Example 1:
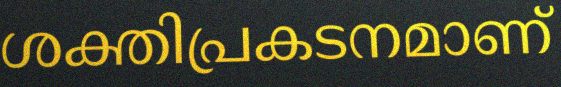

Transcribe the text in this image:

ശക്തിപ്രകടനമാണ്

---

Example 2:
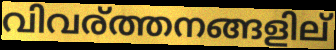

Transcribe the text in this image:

വിവര്ത്തനങ്ങളില്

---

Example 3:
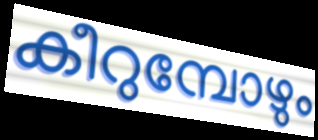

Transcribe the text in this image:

കീറുമ്പോഴും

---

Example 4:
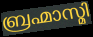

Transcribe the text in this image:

ബ്രഹ്മാസ്മി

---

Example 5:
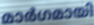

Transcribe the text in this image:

മാർഗമായി